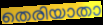
തെരിയാതാ